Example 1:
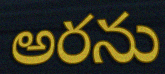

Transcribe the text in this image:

అరను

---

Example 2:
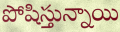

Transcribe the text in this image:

పోషిస్తున్నాయి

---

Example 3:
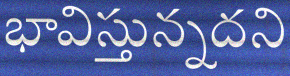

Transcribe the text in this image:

భావిస్తున్నదని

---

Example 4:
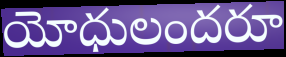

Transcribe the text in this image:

యోధులందరూ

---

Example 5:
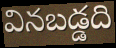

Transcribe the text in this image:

వినబడ్డది